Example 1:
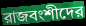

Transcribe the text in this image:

রাজবংশীদের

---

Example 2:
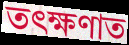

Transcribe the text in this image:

তৎক্ষণাত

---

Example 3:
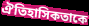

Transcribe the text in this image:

ঐতিহাসিকতাকে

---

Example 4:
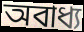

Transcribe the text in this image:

অবাধ্য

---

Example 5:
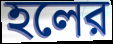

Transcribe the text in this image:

হলের